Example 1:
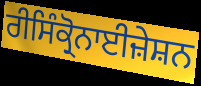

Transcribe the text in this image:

ਰੀਸਿੰਕ੍ਰੋਨਾਈਜ਼ੇਸ਼ਨ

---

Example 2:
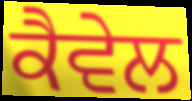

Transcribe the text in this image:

ਕੈਵੇਲ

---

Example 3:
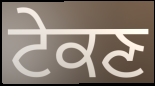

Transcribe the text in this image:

ਟੇਕਣ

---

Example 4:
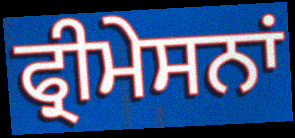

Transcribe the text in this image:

ਫ੍ਰੀਮੇਸਨਾਂ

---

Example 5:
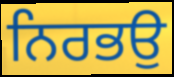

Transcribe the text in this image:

ਨਿਰਭਉ